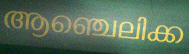
ആഞ്ചെലിക്ക